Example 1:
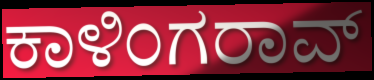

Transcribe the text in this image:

ಕಾಳಿಂಗರಾವ್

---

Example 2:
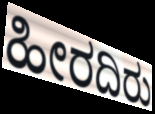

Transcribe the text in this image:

ಹೀರದಿರು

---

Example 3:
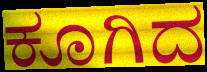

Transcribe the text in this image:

ಕೂಗಿದ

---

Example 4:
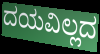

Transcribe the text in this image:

ದಯವಿಲ್ಲದ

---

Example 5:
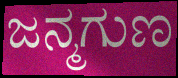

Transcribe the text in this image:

ಜನ್ಮಗುಣ